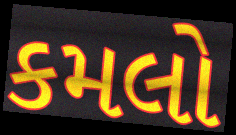
કમલો